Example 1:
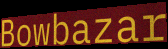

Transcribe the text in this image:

Bowbazar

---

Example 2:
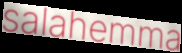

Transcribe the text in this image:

salahemma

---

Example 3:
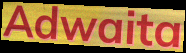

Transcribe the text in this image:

Adwaita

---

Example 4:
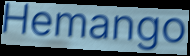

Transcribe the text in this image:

Hemango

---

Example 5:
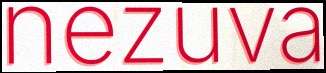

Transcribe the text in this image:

nezuva